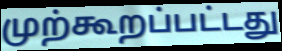
முற்கூறப்பட்டது